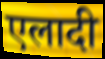
एलादी